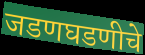
जडणघडणीचे